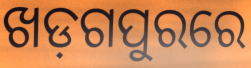
ଖଡ଼ଗପୁରରେ